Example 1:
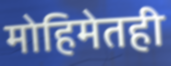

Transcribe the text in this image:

मोहिमेतही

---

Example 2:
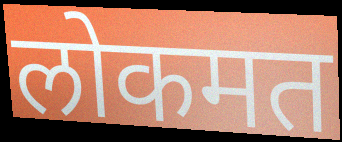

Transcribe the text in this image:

लोकमत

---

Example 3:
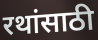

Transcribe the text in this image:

रथांसाठी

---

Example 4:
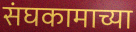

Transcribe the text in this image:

संघकामाच्या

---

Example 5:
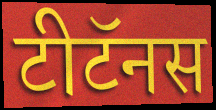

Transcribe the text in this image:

टीटॅनस